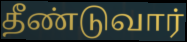
தீண்டுவார்